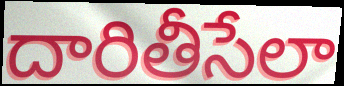
దారితీసేలా